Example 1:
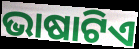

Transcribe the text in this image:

ଭାଷାଟିଏ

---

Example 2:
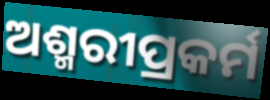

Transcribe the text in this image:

ଅଶ୍ମରୀପ୍ରକର୍ମ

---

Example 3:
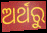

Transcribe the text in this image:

ଅର୍ଥରୁ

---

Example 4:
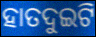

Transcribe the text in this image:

ହାତଦୁଇଟି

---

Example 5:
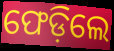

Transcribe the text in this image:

ଫେଡ଼ିଲେ